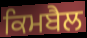
ਕਿਮਬੈਲ